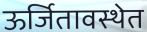
ऊर्जितावस्थेत